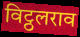
विट्ठलराव